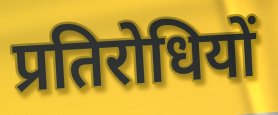
प्रतिरोधियों